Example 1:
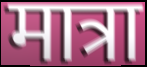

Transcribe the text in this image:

मात्रा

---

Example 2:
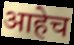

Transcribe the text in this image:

आहेच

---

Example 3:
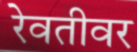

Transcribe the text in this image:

रेवतीवर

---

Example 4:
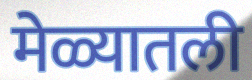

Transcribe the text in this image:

मेळ्यातली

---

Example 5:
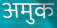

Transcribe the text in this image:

अमुक